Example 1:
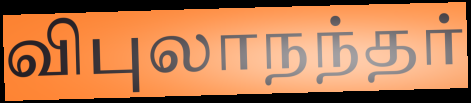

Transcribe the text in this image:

விபுலாநந்தர்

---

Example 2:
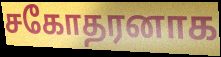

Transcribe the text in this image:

சகோதரனாக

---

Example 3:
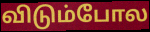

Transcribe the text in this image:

விடும்போல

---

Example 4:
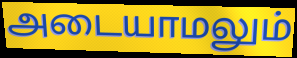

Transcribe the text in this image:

அடையாமலும்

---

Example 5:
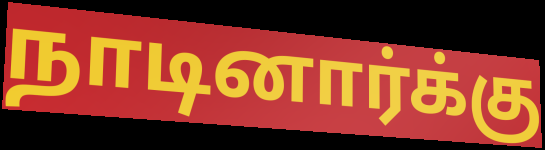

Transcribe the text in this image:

நாடினார்க்கு